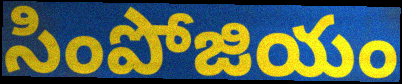
సింపోజియం